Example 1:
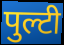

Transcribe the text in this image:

पुल्टी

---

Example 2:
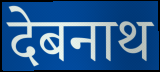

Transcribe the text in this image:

देबनाथ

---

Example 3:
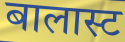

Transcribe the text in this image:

बालास्ट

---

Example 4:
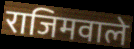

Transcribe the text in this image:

राजिमवाले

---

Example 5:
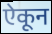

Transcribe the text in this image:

ऐकून